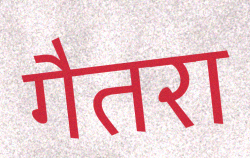
गैतरा